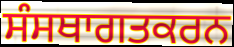
ਸੰਸਥਾਗਤਕਰਨ